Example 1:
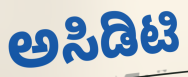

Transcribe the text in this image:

ಅಸಿಡಿಟಿ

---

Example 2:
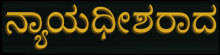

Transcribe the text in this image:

ನ್ಯಾಯಧೀಶರಾದ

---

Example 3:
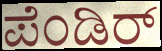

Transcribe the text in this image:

ಪೆಂಡಿರ್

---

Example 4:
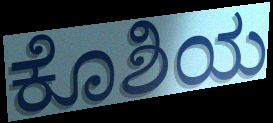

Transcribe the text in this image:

ಕೊಶಿಯ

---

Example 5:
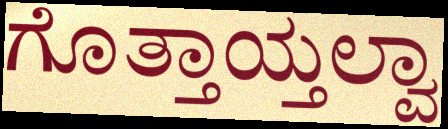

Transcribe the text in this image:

ಗೊತ್ತಾಯ್ತಲ್ವಾ